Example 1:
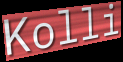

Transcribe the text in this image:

Kolli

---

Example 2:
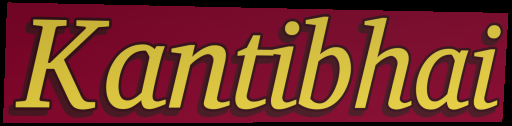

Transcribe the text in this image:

Kantibhai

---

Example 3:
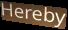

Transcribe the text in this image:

Hereby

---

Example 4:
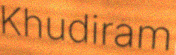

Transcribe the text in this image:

Khudiram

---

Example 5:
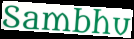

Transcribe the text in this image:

Sambhu